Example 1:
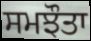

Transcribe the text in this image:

ਸਮਝੌਤਾ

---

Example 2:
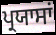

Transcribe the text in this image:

ਪ੍ਰਯਾਸਾਂ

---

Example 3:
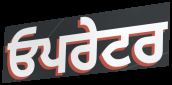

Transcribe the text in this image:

ਓਪਰੇਟਰ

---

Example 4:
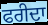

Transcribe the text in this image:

ਫਰੀਦਾ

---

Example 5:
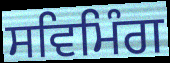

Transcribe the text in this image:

ਸਵਿਮਿੰਗ